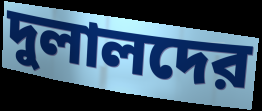
দুলালদের